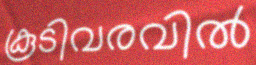
കൂടിവരവിൽ